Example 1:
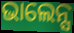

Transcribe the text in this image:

ଭାଲେନ୍ସ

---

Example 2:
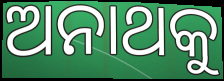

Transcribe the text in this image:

ଅନାଥକୁ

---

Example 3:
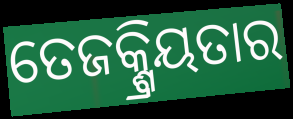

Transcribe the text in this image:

ତେଜକ୍ଶ୍ରିୟତାର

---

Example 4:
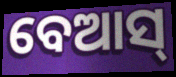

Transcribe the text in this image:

ବେଆସ୍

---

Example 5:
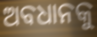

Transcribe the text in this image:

ଅବଧାନକୁ